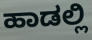
ಹಾಡಲ್ಲಿ